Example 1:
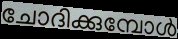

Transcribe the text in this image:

ചോദിക്കുമ്പോൾ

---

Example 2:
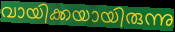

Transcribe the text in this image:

വായിക്കയായിരുന്നു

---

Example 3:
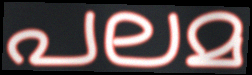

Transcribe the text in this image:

പലമ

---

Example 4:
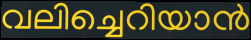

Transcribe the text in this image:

വലിച്ചെറിയാൻ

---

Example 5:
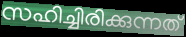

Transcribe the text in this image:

സഹിച്ചിരിക്കുന്നത്